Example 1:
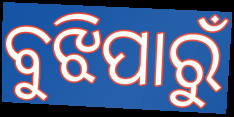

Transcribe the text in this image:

ବୁଝିପାରୁଁ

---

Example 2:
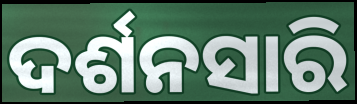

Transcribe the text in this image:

ଦର୍ଶନସାରି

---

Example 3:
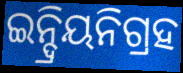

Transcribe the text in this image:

ଇନ୍ଦ୍ରିୟନିଗ୍ରହ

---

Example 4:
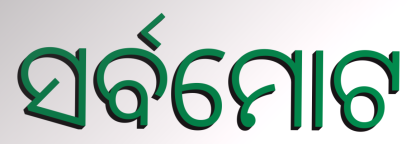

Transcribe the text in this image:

ସର୍ବମୋଟ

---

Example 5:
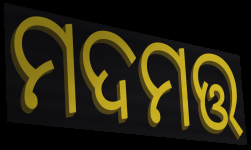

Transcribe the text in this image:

ମଦମତ୍ତ